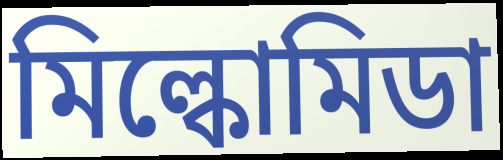
মিল্কোমিডা